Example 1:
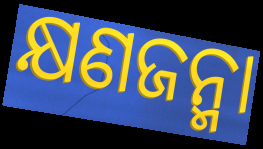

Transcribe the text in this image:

କ୍ଷଣଜନ୍ମା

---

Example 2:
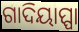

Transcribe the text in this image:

ଗାଦିୟାପ୍ପା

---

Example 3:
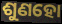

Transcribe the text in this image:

ଶୁଣହୋ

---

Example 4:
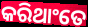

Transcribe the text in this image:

କରିଥାଂତେ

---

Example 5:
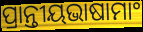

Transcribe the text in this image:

ପ୍ରାନ୍ତୀୟଭାଷାମାଂ